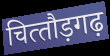
चित्‍तौड़गढ़